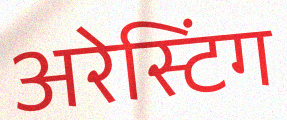
अरेस्टिंग